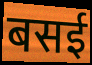
बसई